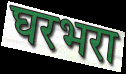
घरभरा